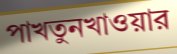
পাখতুনখাওয়ার